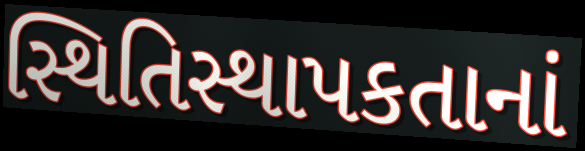
સ્થિતિસ્થાપકતાનાં